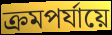
ক্রমপর্যায়ে